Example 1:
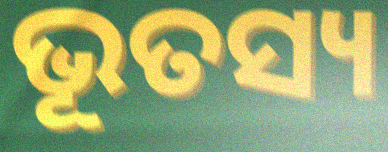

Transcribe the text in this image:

ଭୂତସ୍ୟ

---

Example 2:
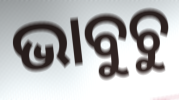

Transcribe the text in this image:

ଭାବୁଚୁ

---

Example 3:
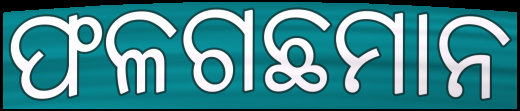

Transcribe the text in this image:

ଫଳଗଛମାନ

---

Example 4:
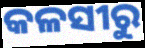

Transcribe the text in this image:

କଳସୀରୁ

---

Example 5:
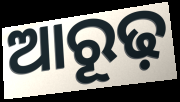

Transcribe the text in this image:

ଆରୂଢ଼